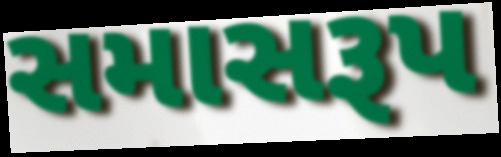
સમાસરૂપ